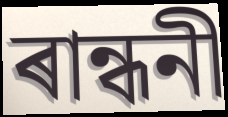
ৰান্ধনী